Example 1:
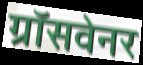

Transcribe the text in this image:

ग्रॉसवेनर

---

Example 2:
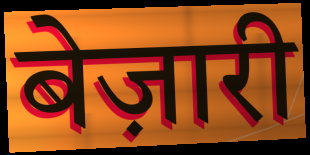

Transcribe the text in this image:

बेज़ारी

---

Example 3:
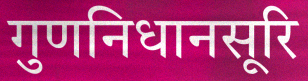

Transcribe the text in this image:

गुणनिधानसूरि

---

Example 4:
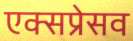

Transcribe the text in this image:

एक्सप्रेसव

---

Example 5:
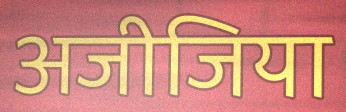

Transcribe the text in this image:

अजीजिया